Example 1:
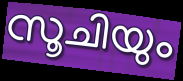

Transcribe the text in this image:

സൂചിയും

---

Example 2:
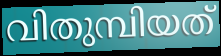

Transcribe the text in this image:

വിതുമ്പിയത്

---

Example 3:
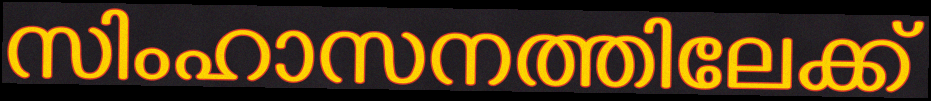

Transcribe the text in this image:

സിംഹാസനത്തിലേക്ക്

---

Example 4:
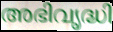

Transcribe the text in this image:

അഭിവൃദ്ധി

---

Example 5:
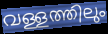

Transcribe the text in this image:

വള്ളത്തിലും